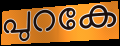
പുറകേ